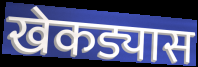
खेकड्यास